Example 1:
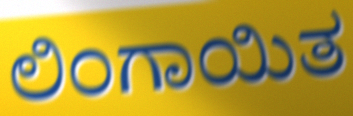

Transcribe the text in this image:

ಲಿಂಗಾಯಿತ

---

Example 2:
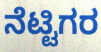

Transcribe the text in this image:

ನೆಟ್ಟಿಗರ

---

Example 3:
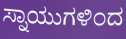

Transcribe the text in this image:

ಸ್ನಾಯುಗಳಿಂದ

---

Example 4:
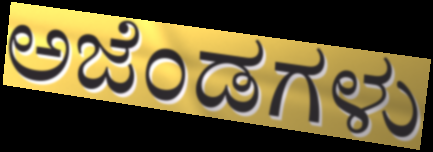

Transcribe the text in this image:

ಅಜೆಂಡಗಳು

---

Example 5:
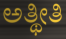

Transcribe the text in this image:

ಅತ್ಥೀತಿ